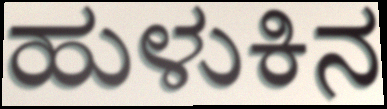
ಹುಳುಕಿನ